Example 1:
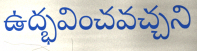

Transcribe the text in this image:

ఉద్భవించవచ్చని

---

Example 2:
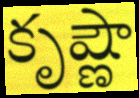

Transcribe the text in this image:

కృష్ణౌ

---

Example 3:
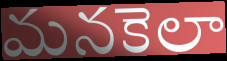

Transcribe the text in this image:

మనకెలా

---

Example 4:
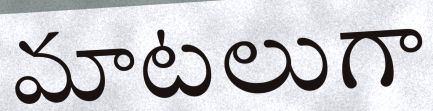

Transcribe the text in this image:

మాటలుగా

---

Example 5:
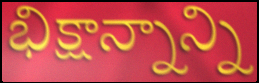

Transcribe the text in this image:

భిక్షాన్నాన్ని